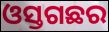
ଓସ୍ତଗଛର